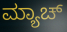
ಮ್ಯಾಚ್